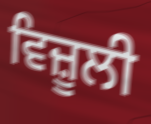
ਵਿਜ਼ੂਲੀ